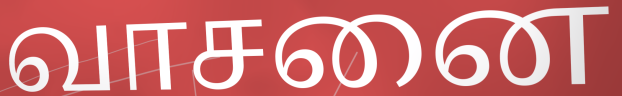
வாசனை